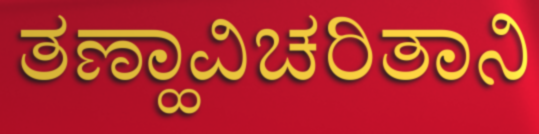
ತಣ್ಹಾವಿಚರಿತಾನಿ